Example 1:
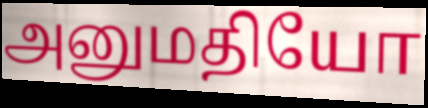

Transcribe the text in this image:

அனுமதியோ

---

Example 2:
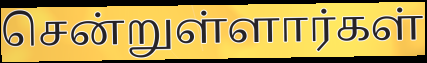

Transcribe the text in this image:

சென்றுள்ளார்கள்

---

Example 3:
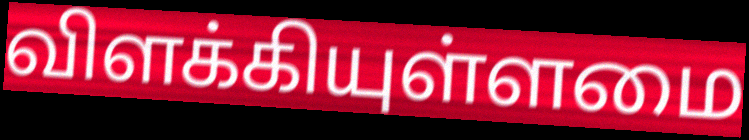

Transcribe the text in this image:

விளக்கியுள்ளமை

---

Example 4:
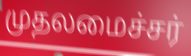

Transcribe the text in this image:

முதலமைச்சர்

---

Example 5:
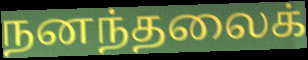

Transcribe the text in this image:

நனந்தலைக்